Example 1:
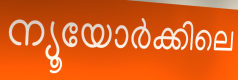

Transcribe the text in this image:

ന്യൂയോർക്കിലെ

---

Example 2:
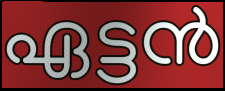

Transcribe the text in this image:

ഏട്ടൻ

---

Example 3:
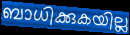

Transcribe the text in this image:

ബാധിക്കുകയില്ല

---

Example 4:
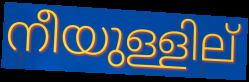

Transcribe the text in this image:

നീയുള്ളില്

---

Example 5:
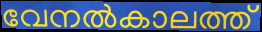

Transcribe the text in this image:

വേനൽകാലത്ത്